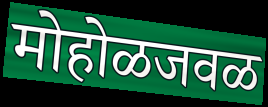
मोहोळजवळ